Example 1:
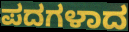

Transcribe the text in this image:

ಪದಗಳಾದ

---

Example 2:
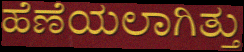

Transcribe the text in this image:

ಹೆಣೆಯಲಾಗಿತ್ತು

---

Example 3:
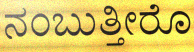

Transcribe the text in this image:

ನಂಬುತ್ತೀರೊ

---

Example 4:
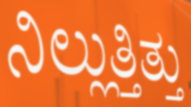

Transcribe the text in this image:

ನಿಲ್ಲುತ್ತಿತ್ತು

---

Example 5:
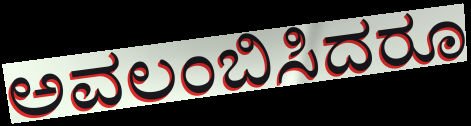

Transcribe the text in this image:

ಅವಲಂಬಿಸಿದರೂ